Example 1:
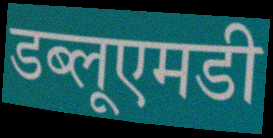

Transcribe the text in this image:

डब्लूएमडी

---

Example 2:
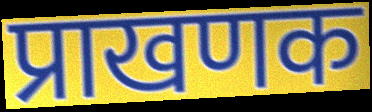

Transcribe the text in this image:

प्राखणक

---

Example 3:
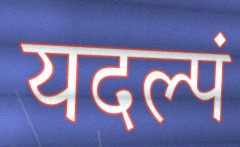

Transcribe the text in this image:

यदल्पं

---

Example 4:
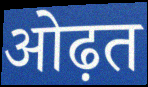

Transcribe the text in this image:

ओढ़त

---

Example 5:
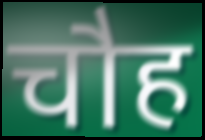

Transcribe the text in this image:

चौह